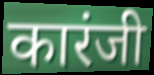
कारंजी